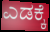
ಎಡಕ್ಕೆ